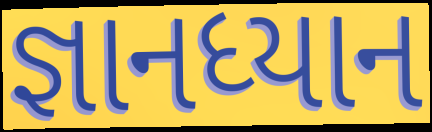
જ્ઞાનધ્યાન